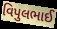
વિપુલભાઈ